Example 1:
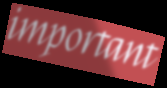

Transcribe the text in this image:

important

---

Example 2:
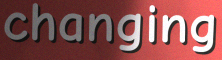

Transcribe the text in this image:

changing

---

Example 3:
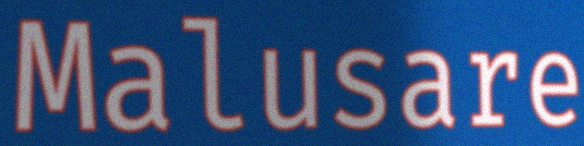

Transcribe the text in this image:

Malusare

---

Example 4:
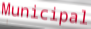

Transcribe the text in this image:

Municipal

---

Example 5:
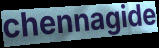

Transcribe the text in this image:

chennagide